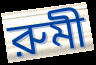
ৰুমী